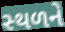
સ્‍થળને